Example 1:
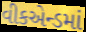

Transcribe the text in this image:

વીકએન્ડમાં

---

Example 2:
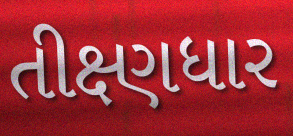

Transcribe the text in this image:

તીક્ષ્ણધાર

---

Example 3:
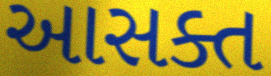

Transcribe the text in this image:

આસક્ત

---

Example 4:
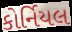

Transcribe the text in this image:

કોર્નિયલ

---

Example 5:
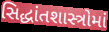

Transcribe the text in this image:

સિદ્ધાંતશાસ્ત્રોમાં